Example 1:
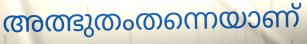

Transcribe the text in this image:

അത്ഭുതംതന്നെയാണ്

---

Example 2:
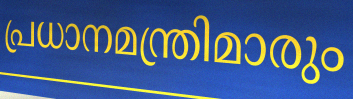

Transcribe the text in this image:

പ്രധാനമന്ത്രിമാരും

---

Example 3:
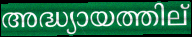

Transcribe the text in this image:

അദ്ധ്യായത്തില്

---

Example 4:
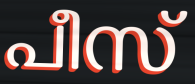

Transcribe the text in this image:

പീസ്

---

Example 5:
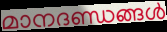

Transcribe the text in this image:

മാനദണ്ഡങ്ങൾ